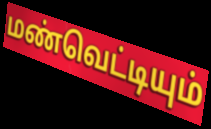
மண்வெட்டியும்